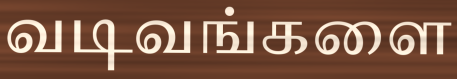
வடிவங்களை